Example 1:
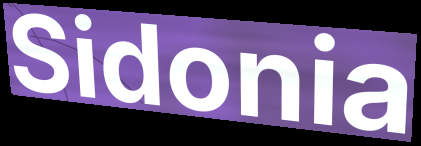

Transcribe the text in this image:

Sidonia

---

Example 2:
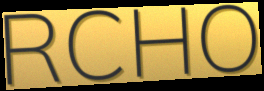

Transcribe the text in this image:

RCHO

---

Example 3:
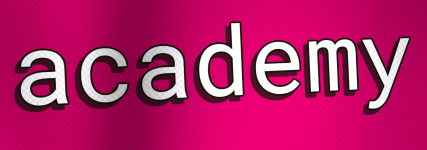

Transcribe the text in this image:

academy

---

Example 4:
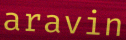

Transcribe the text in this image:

aravin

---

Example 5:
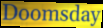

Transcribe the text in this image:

Doomsday